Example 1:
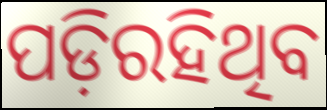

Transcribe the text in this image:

ପଡ଼ିରହିଥିବ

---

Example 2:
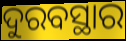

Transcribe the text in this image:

ଦୁରବସ୍ଥାର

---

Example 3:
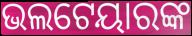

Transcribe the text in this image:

ଭଲଟେୟାରଙ୍କ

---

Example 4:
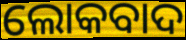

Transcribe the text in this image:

ଲୋକବାଦ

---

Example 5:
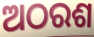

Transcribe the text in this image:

ଅଠରଶ